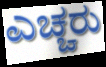
ಎಚ್ಚರು